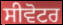
ਸੀਵੋਟਰ